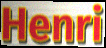
Henri